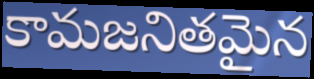
కామజనితమైన